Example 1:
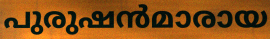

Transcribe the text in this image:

പുരുഷൻമാരായ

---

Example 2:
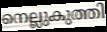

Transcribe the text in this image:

നെല്ലുകുത്തി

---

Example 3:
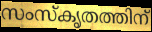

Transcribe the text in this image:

സംസ്കൃതത്തിന്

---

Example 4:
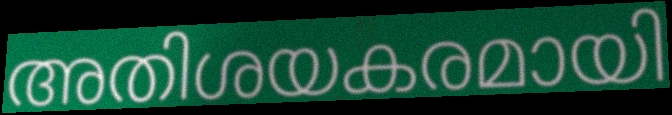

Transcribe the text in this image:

അതിശയകരമായി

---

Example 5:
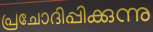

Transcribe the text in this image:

പ്രചോദിപ്പിക്കുന്നു